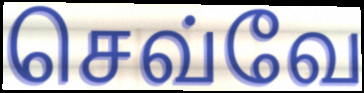
செவ்வே